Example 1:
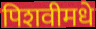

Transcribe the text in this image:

पिशवीमधे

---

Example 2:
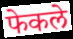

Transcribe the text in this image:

फेकले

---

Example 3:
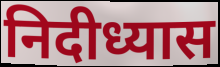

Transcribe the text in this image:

निदीध्यास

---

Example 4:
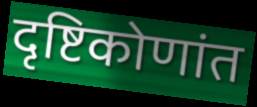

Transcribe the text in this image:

दृष्टिकोणांत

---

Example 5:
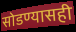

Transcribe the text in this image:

सोडण्यासही